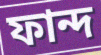
ফান্দ